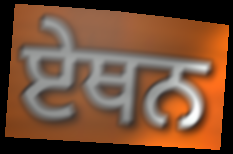
ਏਥਨ